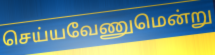
செய்யவேணுமென்று